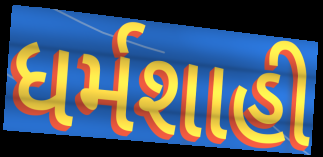
ધર્મશાહી